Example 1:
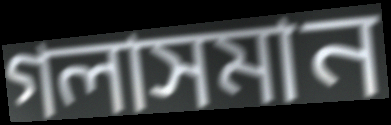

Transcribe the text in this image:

গলাসমান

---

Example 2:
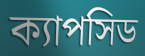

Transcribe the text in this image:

ক্যাপসিড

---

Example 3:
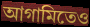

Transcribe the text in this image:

আগামিতেও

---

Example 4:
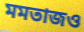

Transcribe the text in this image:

মমতাজও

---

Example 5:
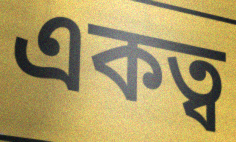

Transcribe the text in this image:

একত্ব